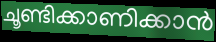
ചൂണ്ടിക്കാണിക്കാൻ